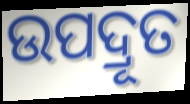
ଉପଦ୍ରୂତ